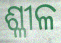
ଶ୍ଳୀଳ